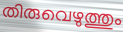
തിരുവെഴുത്തും